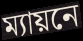
ম্যায়নে